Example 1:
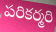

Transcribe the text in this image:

పరికర్మరి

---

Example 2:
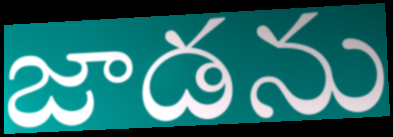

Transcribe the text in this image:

జాడను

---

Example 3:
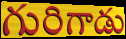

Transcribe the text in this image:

గురిగాడు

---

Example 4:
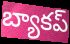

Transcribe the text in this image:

బ్యాకప్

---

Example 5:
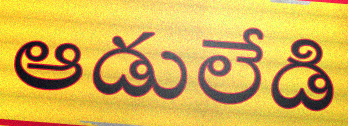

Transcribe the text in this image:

ఆడులేడి